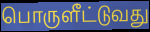
பொருளீட்டுவது